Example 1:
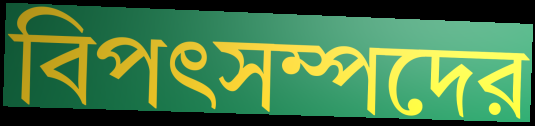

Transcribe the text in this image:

বিপৎসম্পদের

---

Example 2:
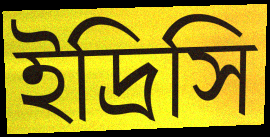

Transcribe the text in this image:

ইদ্রিসি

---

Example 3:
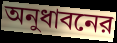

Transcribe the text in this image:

অনুধাবনের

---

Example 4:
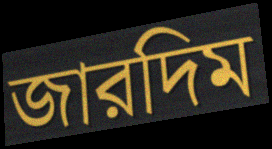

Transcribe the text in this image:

জারদিম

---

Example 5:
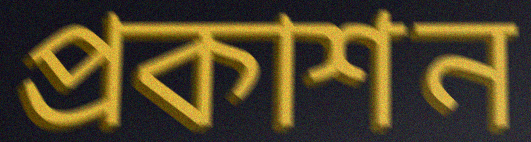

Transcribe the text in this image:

প্রকাশন